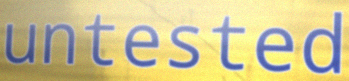
untested